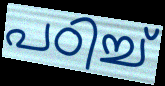
പഠിച്ച്